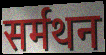
सर्मथन